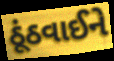
ઠૂંઠવાઈને